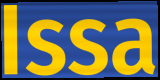
Issa